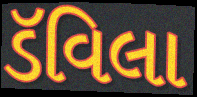
ડૅવિલા